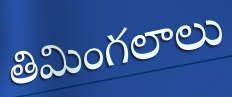
తిమింగలాలు